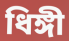
ধিঙ্গী